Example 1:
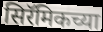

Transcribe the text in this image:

सिरॅमिकच्या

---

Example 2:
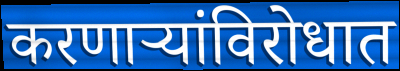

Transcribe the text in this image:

करणाऱ्यांविरोधात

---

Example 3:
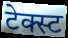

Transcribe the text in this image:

टेक्स्ट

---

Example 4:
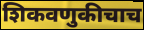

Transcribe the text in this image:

शिकवणुकीचाच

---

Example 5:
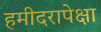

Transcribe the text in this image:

हमीदरापेक्षा